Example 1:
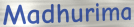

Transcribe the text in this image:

Madhurima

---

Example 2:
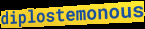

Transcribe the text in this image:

diplostemonous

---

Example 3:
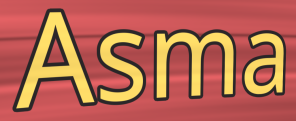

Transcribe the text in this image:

Asma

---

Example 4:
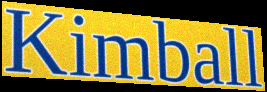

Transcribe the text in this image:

Kimball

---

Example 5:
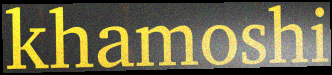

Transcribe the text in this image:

khamoshi